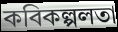
কবিকল্পলতা